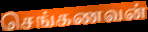
செங்கணவன்